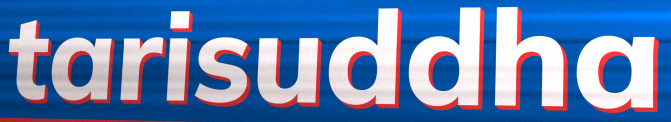
tarisuddha